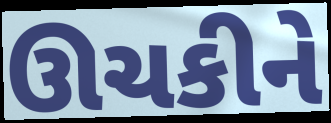
ઊચકીને